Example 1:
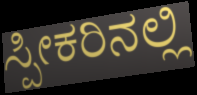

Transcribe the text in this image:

ಸ್ಪೀಕರಿನಲ್ಲಿ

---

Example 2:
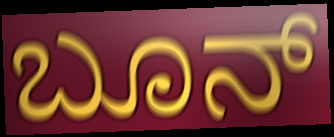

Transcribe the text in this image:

ಬೂನ್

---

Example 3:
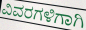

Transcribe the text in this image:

ವಿವರಗಳಿಗಾಗಿ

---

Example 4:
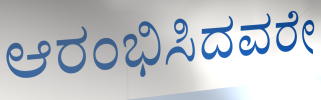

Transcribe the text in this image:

ಆರಂಭಿಸಿದವರೇ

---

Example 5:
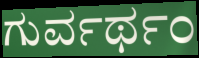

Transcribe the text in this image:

ಗುರ್ವರ್ಥಂ